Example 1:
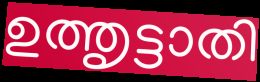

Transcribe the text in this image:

ഉത്തൃട്ടാതി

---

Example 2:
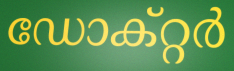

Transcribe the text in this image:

ഡോക്റ്റർ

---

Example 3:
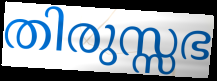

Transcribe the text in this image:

തിരുസ്സഭ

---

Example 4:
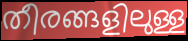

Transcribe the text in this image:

തീരങ്ങളിലുള്ള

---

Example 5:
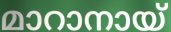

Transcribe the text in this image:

മാറാനായ്